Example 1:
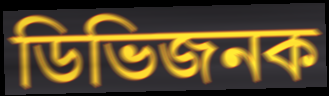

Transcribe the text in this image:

ডিভিজনক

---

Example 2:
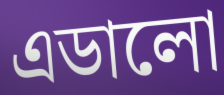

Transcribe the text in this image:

এডালো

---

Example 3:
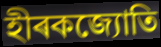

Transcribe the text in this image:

হীৰকজ্যোতি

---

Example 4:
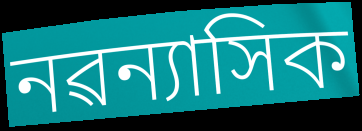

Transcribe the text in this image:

নৱন্যাসিক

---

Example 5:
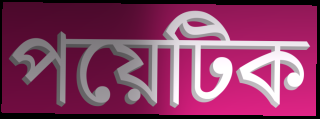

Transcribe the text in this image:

পয়েটিক